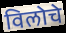
विलोचे